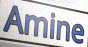
Amine